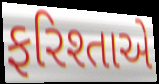
ફરિશ્તાએ